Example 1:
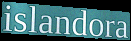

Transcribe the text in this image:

islandora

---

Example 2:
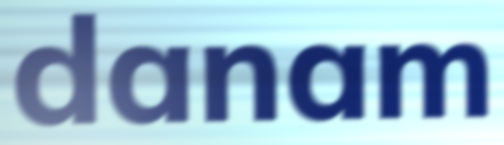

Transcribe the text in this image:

danam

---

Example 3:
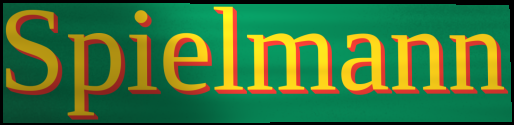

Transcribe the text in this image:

Spielmann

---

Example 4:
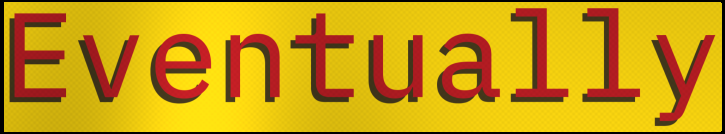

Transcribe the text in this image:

Eventually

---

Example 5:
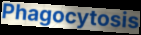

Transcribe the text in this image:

Phagocytosis